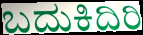
ಬದುಕಿದಿರಿ